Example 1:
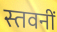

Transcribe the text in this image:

स्तवनीं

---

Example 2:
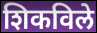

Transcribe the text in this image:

शिकविले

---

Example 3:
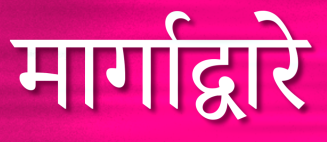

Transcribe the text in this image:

मार्गाद्वारे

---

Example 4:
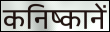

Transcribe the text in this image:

कनिष्कानें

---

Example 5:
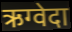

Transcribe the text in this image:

ऋग्वेदा